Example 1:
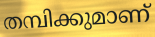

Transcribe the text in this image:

തമ്പിക്കുമാണ്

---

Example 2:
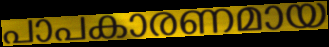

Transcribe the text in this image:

പാപകാരണമായ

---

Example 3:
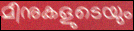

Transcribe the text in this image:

മീനുകളുടെയും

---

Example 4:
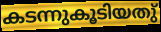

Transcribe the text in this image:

കടന്നുകൂടിയതു്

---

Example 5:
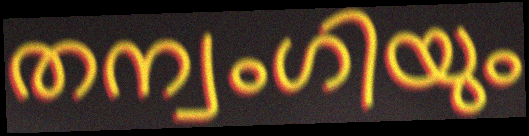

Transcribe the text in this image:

തന്വംഗിയും